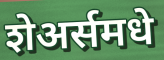
शेअर्समधे